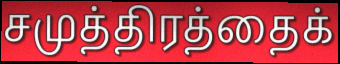
சமுத்திரத்தைக்